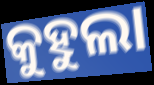
କୁହୁଲା